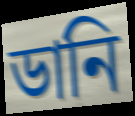
ডানি